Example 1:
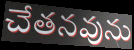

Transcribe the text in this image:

చేతనవును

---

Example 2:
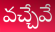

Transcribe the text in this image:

వచ్చేవే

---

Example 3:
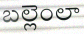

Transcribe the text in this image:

బల్లెంలా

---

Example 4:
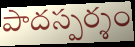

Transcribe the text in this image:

పాదస్పర్శం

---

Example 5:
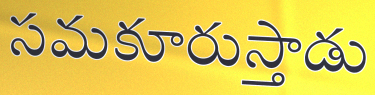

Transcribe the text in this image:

సమకూరుస్తాడు